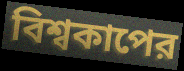
বিশ্বকাপের